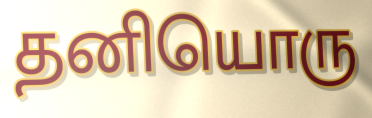
தனியொரு